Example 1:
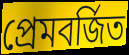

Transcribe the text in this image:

প্রেমবর্জিত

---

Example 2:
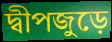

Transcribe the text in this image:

দ্বীপজুড়ে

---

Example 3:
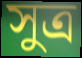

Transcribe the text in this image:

সুত্র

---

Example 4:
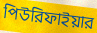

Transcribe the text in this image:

পিউরিফাইয়ার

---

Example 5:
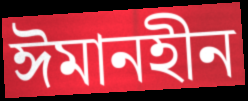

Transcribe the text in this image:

ঈমানহীন